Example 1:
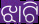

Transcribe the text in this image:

ଝାଟି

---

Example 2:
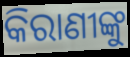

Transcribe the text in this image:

କିରାଣୀଙ୍କୁ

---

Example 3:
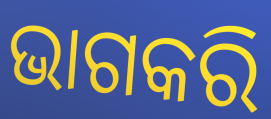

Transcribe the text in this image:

ଭାଗକରି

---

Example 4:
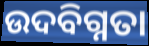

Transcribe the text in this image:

ଉଦବିଗ୍ନତା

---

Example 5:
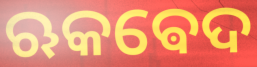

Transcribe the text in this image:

ଋକଵେଦ